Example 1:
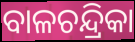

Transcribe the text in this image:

ବାଳଚନ୍ଦ୍ରିକା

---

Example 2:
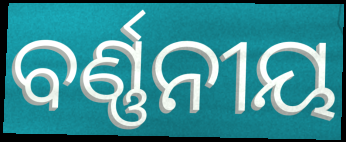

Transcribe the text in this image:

ବର୍ଣ୍ଣନୀୟ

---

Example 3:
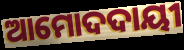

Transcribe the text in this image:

ଆମୋଦଦାୟୀ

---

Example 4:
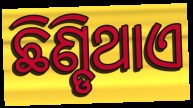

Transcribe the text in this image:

ଛିଣ୍ଡିଥାଏ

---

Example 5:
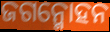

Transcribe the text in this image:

ଜଗନ୍ମୋହନ